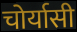
चोर्यासी